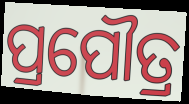
ପ୍ରପୌତ୍ର